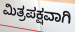
ಮಿತ್ರಪಕ್ಷವಾಗಿ